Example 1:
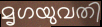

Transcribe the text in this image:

മൃഗയുവതി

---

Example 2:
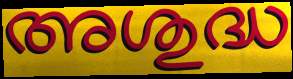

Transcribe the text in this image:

അശുദ്ധ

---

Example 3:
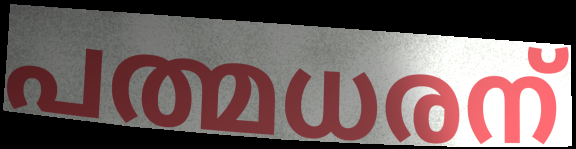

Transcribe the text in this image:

പത്മധരന്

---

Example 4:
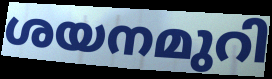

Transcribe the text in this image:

ശയനമുറി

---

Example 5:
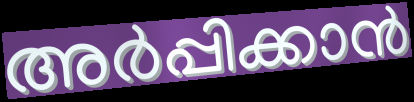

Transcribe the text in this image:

അർപ്പിക്കാൻ